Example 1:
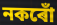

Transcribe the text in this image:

নকৰোঁ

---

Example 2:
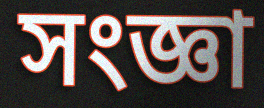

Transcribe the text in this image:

সংজ্ঞা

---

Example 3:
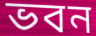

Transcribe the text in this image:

ভবন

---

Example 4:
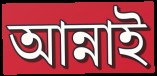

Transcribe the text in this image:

আন্নাই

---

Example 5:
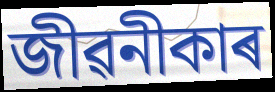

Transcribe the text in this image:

জীৱনীকাৰ